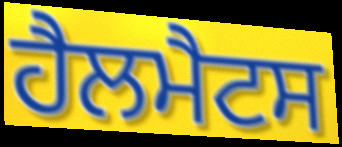
ਹੈਲਮੈਟਸ